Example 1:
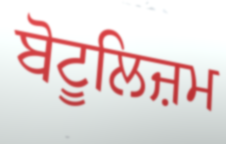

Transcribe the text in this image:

ਬੋਟੂਲਿਜ਼ਮ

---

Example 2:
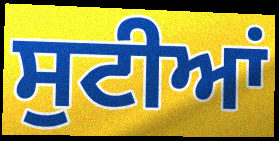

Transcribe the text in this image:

ਸੁਟੀਆਂ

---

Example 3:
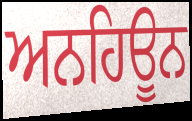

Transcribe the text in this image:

ਅਨਹਿਊਨ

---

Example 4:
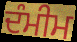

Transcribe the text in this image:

ਦੰਮੀਮ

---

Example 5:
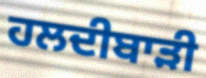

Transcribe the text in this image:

ਹਲਦੀਬਾੜੀ